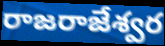
రాజరాజేశ్వర